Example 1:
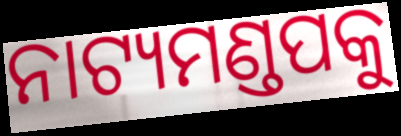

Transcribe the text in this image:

ନାଟ୍ୟମଣ୍ଡପକୁ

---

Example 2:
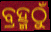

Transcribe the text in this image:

ବ୍ରହ୍ମଠୁଁ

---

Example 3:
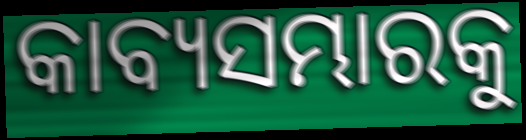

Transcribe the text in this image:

କାବ୍ୟସମ୍ଭାରକୁ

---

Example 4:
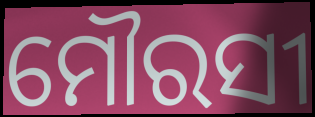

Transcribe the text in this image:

ମୌରସୀ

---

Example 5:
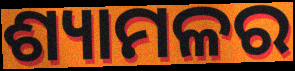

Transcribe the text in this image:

ଶ୍ୟାମଳର